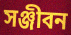
সঞ্জীবন